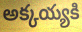
అక్కయ్యకి